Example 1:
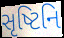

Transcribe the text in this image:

સૃષ્ટિનિ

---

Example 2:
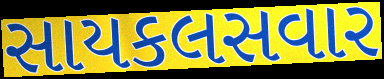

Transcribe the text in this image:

સાયકલસવાર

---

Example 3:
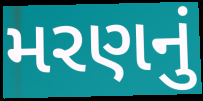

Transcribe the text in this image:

મરણનું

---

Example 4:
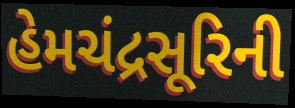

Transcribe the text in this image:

હેમચંદ્રસૂરિની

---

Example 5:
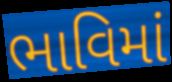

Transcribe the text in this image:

ભાવિમાં